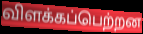
விளக்கப்பெற்றன